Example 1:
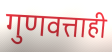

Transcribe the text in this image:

गुणवत्ताही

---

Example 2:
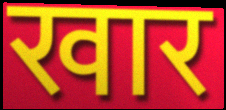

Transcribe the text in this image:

खार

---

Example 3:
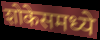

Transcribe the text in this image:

शोकेसमध्ये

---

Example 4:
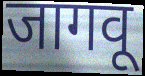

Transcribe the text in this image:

जागवू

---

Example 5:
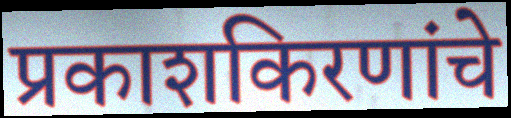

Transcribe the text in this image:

प्रकाशकिरणांचे